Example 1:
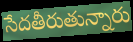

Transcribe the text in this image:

సేదతీరుతున్నారు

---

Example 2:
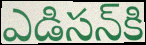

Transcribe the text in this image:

ఎడిసన్‌కి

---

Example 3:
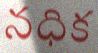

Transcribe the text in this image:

నధిక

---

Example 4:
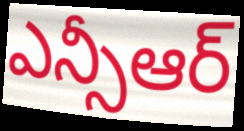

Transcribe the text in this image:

ఎన్సీఆర్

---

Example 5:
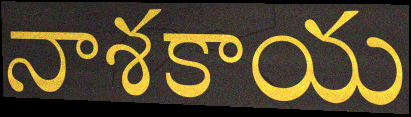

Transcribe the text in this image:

నాశకాయ